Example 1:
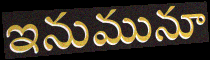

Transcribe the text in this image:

ఇనుమునూ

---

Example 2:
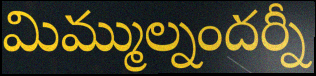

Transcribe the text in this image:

మిమ్ముల్నందర్నీ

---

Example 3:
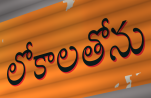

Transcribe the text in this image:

లోకాలతోను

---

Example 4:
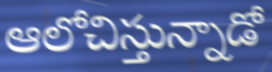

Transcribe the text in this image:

ఆలోచిస్తున్నాడో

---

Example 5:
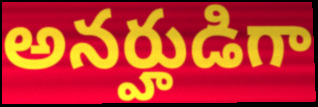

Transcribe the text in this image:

అనర్హుడిగా